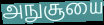
அநுசூயை